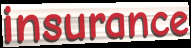
insurance